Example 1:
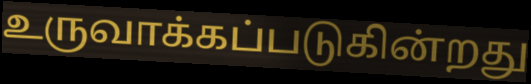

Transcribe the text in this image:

உருவாக்கப்படுகின்றது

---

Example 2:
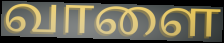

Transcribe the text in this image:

வாளை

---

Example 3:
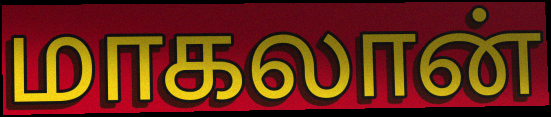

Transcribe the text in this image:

மாகலான்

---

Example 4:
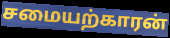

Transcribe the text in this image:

சமையற்காரன்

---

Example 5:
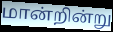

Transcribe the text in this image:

மான்றின்று